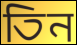
তিন